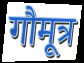
गौमूत्र